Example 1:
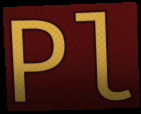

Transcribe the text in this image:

Pl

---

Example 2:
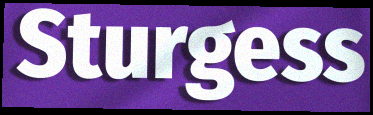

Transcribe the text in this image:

Sturgess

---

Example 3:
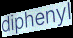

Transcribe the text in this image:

diphenyl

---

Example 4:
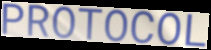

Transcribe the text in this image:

PROTOCOL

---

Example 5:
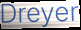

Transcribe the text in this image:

Dreyer